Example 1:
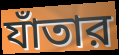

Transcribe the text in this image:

যাঁতার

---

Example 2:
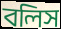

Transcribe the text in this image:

বলিস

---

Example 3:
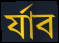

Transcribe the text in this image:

র্যাব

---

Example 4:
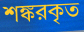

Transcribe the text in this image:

শঙ্করকৃত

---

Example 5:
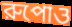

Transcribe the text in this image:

রুপোও